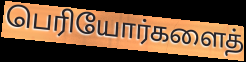
பெரியோர்களைத்